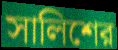
সালিশের